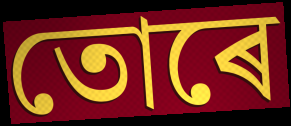
তোৰে